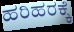
ಹರಿಹರಕ್ಕೆ